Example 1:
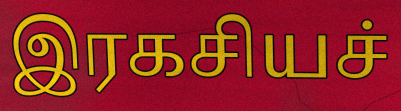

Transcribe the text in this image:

இரகசியச்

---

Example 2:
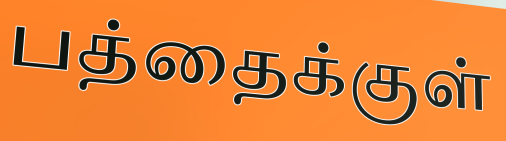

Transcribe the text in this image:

பத்தைக்குள்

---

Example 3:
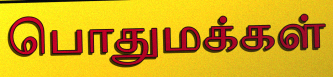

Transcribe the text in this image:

பொதுமக்கள்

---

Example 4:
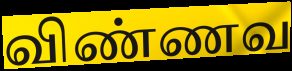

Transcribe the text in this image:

விண்ணவ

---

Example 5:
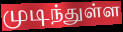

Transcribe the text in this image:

முடிந்துள்ள